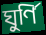
ঘুর্ণি